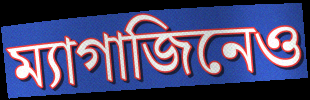
ম্যাগাজিনেও